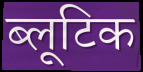
ब्लूटिक